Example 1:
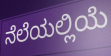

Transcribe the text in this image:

ನೆಲೆಯಲ್ಲಿಯೆ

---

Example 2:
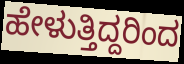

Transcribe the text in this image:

ಹೇಳುತ್ತಿದ್ದರಿಂದ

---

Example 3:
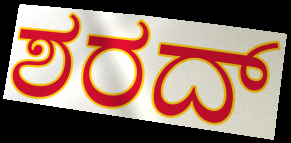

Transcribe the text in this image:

ಶರದ್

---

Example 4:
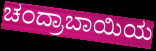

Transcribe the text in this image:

ಚಂದ್ರಾಬಾಯಿಯ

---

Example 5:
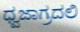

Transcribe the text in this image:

ಧ್ವಜಾಗ್ರದಲಿ